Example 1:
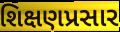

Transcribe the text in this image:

શિક્ષણપ્રસાર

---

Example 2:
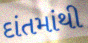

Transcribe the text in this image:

દાંતમાંથી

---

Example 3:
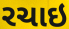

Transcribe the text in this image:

રચાઇ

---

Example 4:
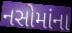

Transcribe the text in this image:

નસોમાંના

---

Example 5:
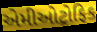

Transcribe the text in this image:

એમીઓટ્રોફિક